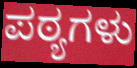
ಪಠ್ಯಗಳು